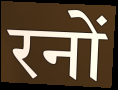
रनों